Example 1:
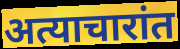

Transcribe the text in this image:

अत्याचारांत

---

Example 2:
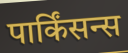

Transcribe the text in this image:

पार्किंसन्स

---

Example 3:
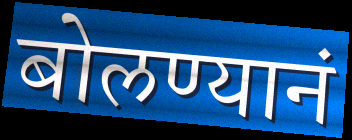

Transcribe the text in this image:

बोलण्यानं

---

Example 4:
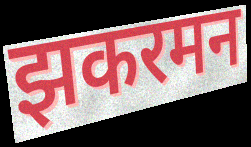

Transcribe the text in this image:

झकरमन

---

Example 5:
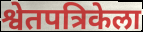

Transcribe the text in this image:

श्वेतपत्रिकेला